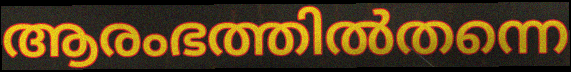
ആരംഭത്തിൽതന്നെ